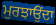
ਮੁਰਝਾਉਂਦਾ